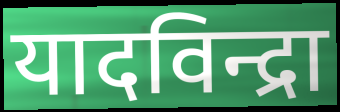
यादविन्द्रा